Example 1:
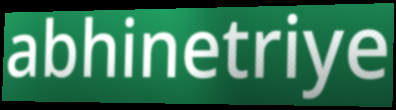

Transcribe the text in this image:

abhinetriye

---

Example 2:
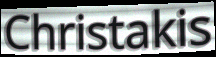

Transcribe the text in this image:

Christakis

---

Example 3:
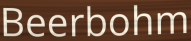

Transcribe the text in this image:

Beerbohm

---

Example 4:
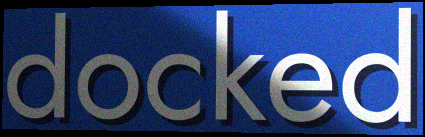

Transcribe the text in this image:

docked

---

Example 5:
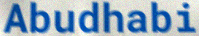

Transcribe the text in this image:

Abudhabi